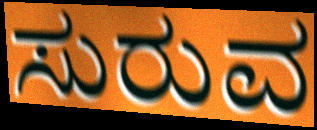
ಸುರುವ